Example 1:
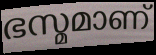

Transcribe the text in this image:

ഭസ്മമാണ്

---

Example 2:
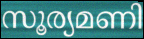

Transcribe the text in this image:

സൂര്യമണി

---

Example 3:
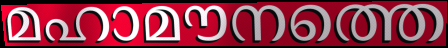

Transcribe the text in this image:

മഹാമൗനത്തെ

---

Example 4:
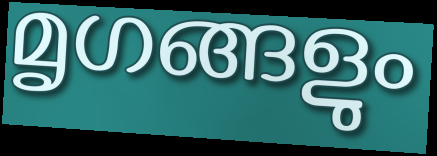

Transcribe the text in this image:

മൃഗങ്ങളും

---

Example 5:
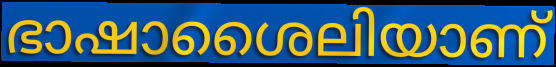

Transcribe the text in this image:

ഭാഷാശൈലിയാണ്